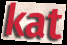
kat